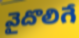
వైదొలిగే